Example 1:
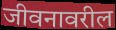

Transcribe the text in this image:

जीवनावरील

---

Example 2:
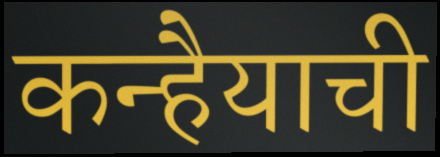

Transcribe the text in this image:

कन्हैयाची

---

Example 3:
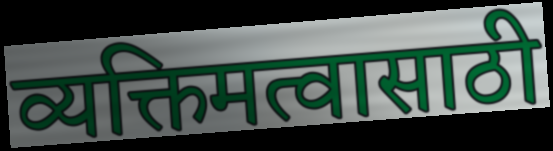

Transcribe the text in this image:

व्यक्तिमत्वासाठी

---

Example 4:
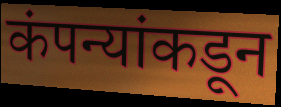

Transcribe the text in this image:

कंपन्यांकडून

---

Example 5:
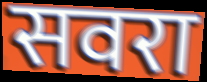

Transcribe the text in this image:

सवरा